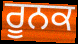
ਰੂਨਕ